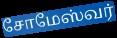
சோமேஸ்வர்